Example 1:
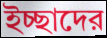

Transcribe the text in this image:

ইচ্ছাদের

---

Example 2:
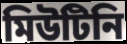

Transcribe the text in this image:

মিউটিনি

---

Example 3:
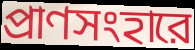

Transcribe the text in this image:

প্রাণসংহারে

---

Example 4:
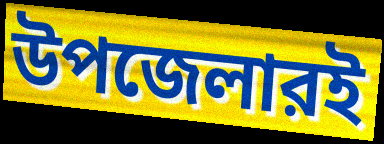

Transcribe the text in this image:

উপজেলারই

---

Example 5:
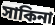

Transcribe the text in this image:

সাকিনা